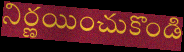
నిర్ణయించుకొండి